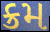
ક્રમ